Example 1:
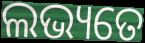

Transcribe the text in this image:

ଲଭ୍ୟତେ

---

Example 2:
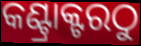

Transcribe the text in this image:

କଣ୍ଟ୍ରାକ୍ଟରଠୁ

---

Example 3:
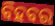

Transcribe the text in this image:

ବିହବର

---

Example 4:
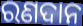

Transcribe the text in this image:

ରଣଦାନ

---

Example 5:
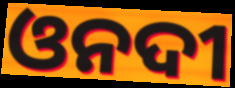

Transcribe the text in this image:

ଓନଦୀ